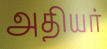
அதியர்